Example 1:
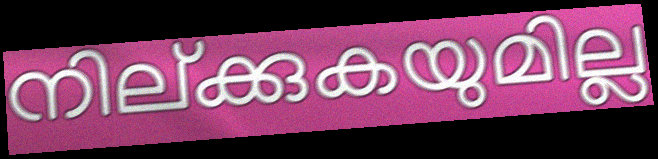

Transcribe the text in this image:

നില്ക്കുകയുമില്ല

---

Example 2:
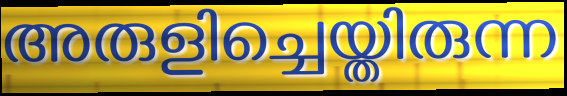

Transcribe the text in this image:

അരുളിച്ചെയ്തിരുന്ന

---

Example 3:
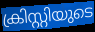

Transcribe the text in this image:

ക്രിസ്റ്റിയുടെ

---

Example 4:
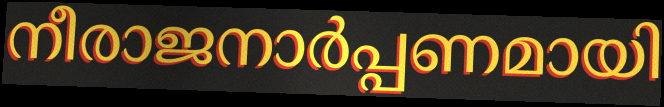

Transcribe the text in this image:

നീരാജനാർപ്പണമായി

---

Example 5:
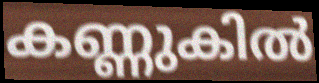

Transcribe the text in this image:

കണ്ണുകിൽ